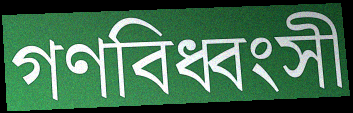
গণবিধ্বংসী